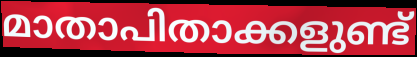
മാതാപിതാക്കളുണ്ട്